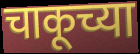
चाकूच्या